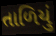
તાળિયું